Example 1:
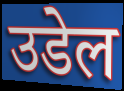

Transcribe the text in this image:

उडेल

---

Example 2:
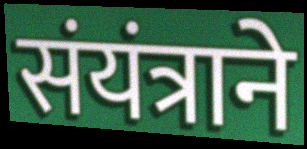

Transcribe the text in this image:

संयंत्राने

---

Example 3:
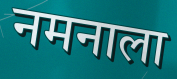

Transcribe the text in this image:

नमनाला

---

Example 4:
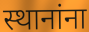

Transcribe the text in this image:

स्थानांना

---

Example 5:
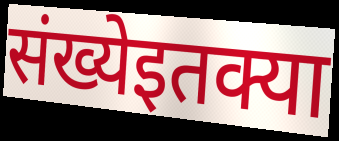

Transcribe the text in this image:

संख्येइतक्या